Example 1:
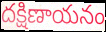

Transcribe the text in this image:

దక్షిణాయనం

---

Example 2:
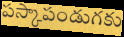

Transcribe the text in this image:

పస్కాపండుగకు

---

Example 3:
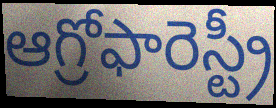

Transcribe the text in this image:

ఆగ్రోఫారెస్ట్రీ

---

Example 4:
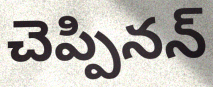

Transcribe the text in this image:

చెప్పినన్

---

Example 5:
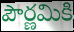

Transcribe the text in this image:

పౌర్ణమికి